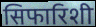
सिफारिशी